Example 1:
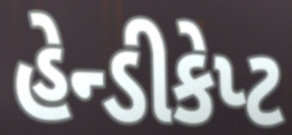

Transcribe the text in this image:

હેન્ડીકેપ્ટ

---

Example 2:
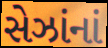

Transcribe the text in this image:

સેઝાંનાં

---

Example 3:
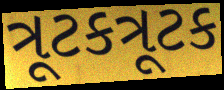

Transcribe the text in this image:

ત્રૂટકત્રૂટક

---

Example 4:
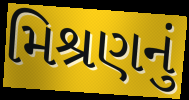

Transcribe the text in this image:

મિશ્રણનું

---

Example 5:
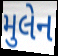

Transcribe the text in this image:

મુલેન